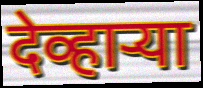
देव्हाऱ्या